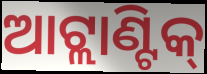
ଆଟ୍ଲାଣ୍ଟିକ୍